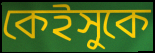
কেইসুকে